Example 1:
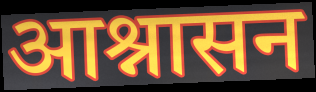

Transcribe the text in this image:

आश्नासन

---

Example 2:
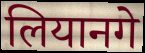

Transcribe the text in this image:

लियानगे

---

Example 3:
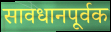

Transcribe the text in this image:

सावधानपूर्वक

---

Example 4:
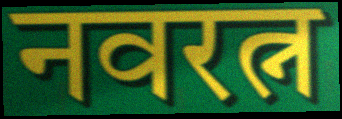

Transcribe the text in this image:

नवरत्न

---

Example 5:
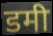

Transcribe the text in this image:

डमी